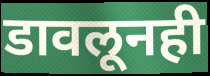
डावलूनही